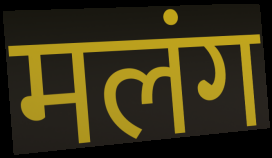
मलंग